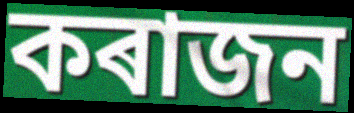
কৰাজন